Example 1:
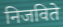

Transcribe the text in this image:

निजविते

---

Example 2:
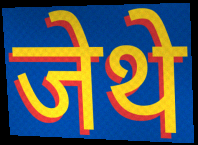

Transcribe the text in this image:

जेथे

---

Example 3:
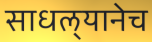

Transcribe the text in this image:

साधल्यानेच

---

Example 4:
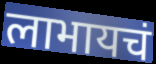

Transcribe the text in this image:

लाभायचं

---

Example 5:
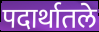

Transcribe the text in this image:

पदार्थातले